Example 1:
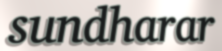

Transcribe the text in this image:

sundharar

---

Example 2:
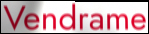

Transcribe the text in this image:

Vendrame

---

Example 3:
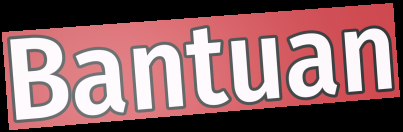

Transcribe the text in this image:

Bantuan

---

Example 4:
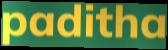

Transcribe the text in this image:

paditha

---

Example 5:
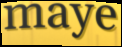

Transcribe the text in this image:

maye